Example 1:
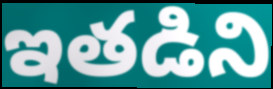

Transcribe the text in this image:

ఇతడిని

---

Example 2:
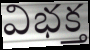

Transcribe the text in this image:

విభక్త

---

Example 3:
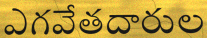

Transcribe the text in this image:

ఎగవేతదారుల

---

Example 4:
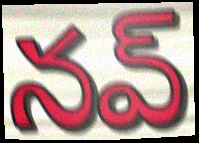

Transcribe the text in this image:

నవ్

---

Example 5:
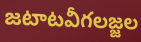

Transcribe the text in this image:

జటాటవీగలజ్జల